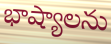
భాష్యాలను